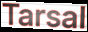
Tarsal